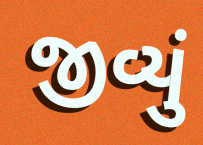
જીવ્યું